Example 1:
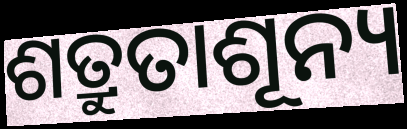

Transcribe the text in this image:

ଶତ୍ରୁତାଶୂନ୍ୟ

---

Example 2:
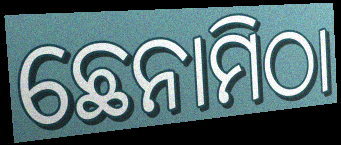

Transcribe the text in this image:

ଛେନାମିଠା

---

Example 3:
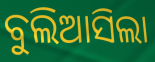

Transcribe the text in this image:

ବୁଲିଆସିଲା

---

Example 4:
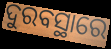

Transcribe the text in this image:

ଦୁରବସ୍ଥାରେ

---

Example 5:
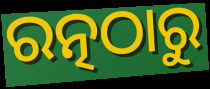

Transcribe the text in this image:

ରତ୍ନଠାରୁ